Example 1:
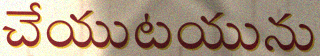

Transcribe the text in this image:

చేయుటయును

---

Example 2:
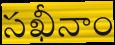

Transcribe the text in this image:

సఖీనాం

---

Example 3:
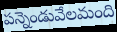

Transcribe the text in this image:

పన్నెండువేలమంది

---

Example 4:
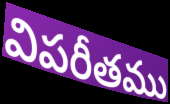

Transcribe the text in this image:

విపరీతము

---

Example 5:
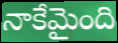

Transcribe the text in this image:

నాకేమైంది